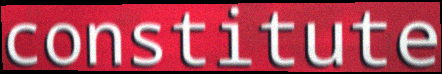
constitute